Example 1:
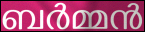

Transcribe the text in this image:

ബർമ്മൻ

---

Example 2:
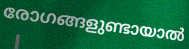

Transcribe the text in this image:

രോഗങ്ങളുണ്ടായാൽ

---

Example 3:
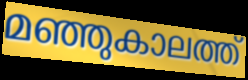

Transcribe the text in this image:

മഞ്ഞുകാലത്ത്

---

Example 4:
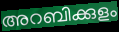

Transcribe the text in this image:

അറബിക്കുളം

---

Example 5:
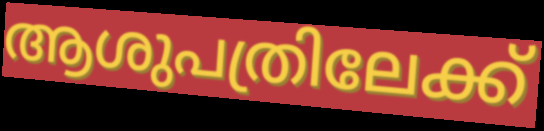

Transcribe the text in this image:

ആശുപത്രിലേക്ക്